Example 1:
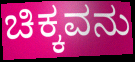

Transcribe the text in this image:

ಚಿಕ್ಕವನು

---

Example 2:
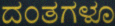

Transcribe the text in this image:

ದಂತಗಳೂ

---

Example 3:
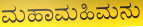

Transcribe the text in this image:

ಮಹಾಮಹಿಮನು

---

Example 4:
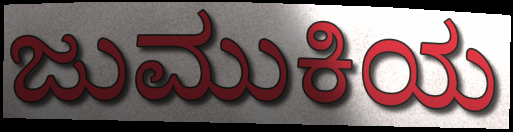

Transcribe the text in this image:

ಜುಮುಕಿಯ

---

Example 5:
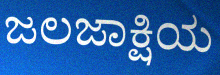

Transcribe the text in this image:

ಜಲಜಾಕ್ಷಿಯ